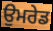
ਉਮਰੇਡ